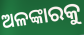
ଅଳଙ୍କାରକୁ